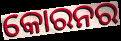
କୋରନର